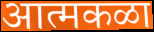
आत्मकळा